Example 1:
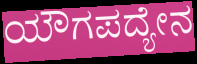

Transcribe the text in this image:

ಯೌಗಪದ್ಯೇನ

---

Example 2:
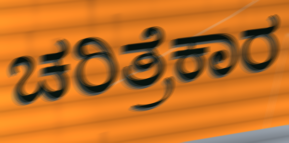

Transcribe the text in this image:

ಚರಿತ್ರೆಕಾರ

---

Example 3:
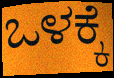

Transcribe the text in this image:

ಒಳಕ್ಕೆ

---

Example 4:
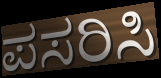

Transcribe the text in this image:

ಪಸರಿಸಿ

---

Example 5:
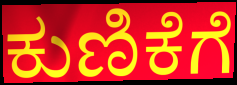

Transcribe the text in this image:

ಕುಣಿಕೆಗೆ